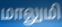
மாலுமி